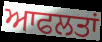
ਆਫਲਤਾਂ